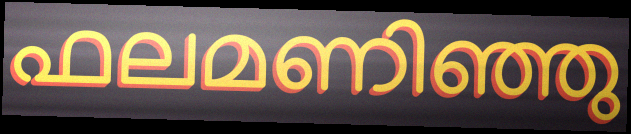
ഫലമണിഞ്ഞു